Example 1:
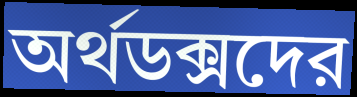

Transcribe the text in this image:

অর্থডক্সদের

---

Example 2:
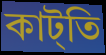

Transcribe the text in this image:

কাট্তি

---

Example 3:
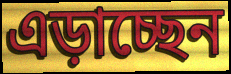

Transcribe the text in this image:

এড়াচ্ছেন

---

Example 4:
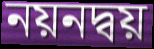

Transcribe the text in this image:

নয়নদ্বয়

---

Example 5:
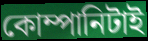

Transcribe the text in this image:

কোম্পানিটাই